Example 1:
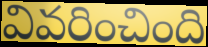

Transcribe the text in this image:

వివరించింది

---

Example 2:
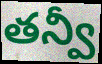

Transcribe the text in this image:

తన్వీ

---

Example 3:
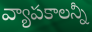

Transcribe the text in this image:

వ్యాపకాలన్నీ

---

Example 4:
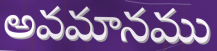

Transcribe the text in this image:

అవమానము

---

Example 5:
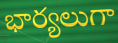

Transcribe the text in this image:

భార్యలుగా